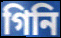
গিনি